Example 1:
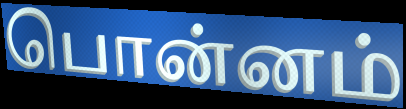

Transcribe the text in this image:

பொன்னம்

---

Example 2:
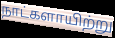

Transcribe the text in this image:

நாட்களாயிற்று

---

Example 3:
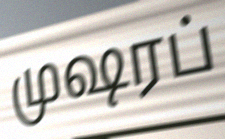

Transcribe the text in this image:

முஷரப்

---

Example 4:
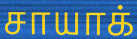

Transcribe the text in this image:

சாயாக்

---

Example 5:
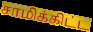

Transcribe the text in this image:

சாமிக்கிட்ட